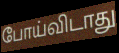
போய்விடாது